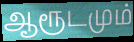
ஆரூடமும்